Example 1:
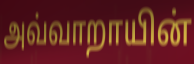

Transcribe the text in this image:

அவ்வாறாயின்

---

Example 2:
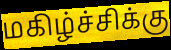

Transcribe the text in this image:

மகிழ்ச்சிக்கு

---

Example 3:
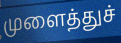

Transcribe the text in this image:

முளைத்துச்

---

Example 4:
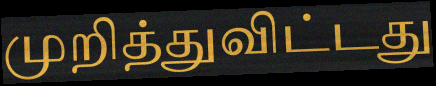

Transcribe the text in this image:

முறித்துவிட்டது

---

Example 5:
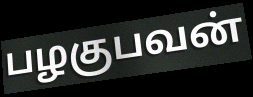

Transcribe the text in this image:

பழகுபவன்